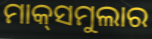
ମାକ୍‌ସମୁଲାର